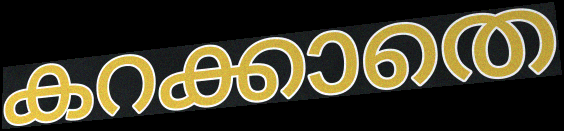
കറക്കാതെ